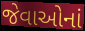
જેવાઓનાં